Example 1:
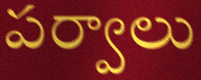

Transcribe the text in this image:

పర్వాలు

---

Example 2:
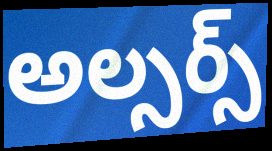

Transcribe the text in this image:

అల్సర్స్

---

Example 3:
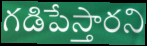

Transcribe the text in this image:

గడిపేస్తారని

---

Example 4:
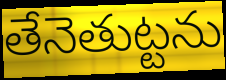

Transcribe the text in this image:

తేనెతుట్టను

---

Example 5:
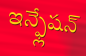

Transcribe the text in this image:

ఇన్ఫ్లేషన్